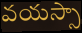
వయస్సా